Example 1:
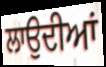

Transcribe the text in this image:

ਲਾਉਦੀਆਂ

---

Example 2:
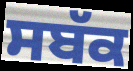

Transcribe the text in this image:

ਸਬੱਕ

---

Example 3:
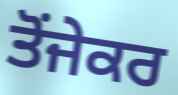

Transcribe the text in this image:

ਤੋਂਜੇਕਰ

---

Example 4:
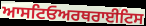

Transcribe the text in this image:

ਆਸਟਿਓਅਰਥਰਾਈਟਿਸ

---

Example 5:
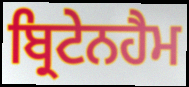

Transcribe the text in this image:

ਬ੍ਰਿਟੇਨਹੈਮ